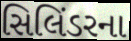
સિલિંડરના